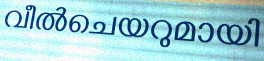
വീൽചെയറുമായി